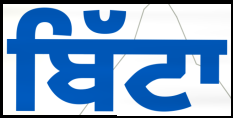
ਬਿੱਟਾ